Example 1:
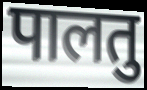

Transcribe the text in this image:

पालतु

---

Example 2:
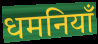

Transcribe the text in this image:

धमनियाँ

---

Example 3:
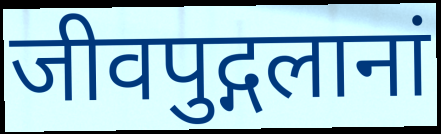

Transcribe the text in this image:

जीवपुद्गलानां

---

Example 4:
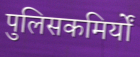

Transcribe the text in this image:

पुलिसकमिर्यों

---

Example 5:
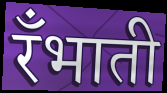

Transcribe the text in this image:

रँभाती